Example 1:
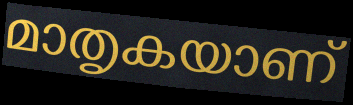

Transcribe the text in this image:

മാതൃകയാണ്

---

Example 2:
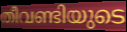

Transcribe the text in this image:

തീവണ്ടിയുടെ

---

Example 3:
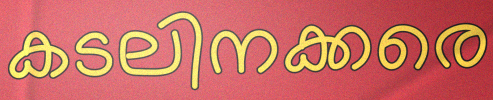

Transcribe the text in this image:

കടലിനക്കരെ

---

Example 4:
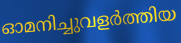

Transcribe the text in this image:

ഓമനിച്ചുവളർത്തിയ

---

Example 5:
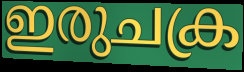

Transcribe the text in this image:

ഇരുചക്ര